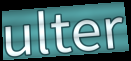
ulter